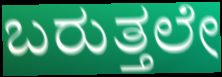
ಬರುತ್ತಲೇ